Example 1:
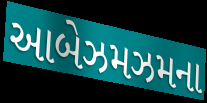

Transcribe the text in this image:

આબેઝમઝમના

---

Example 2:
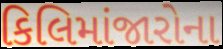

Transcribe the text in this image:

કિલિમાંજારોના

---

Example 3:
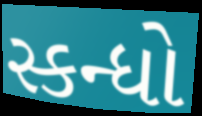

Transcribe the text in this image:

સ્કન્ધો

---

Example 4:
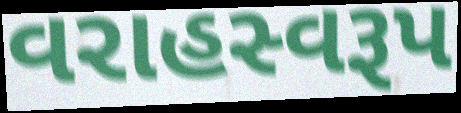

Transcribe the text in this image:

વરાહસ્વરૂપ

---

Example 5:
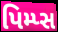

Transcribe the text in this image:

પિમ્પ્સ